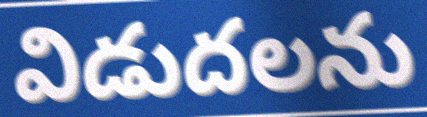
విడుదలను